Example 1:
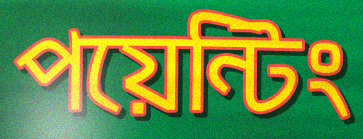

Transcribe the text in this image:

পয়েন্টিং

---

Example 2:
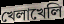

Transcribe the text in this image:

খেলাখেলি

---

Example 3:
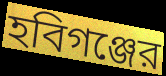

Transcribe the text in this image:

হবিগঞ্জের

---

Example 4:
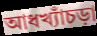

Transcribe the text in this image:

আধখ্যাঁচড়া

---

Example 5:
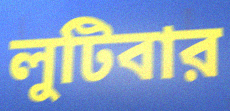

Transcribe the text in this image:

লুটিবার